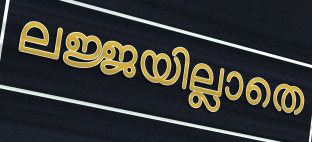
ലജ്ജയില്ലാതെ